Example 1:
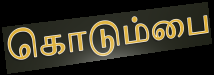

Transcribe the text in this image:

கொடும்பை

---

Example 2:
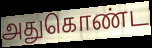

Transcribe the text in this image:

அதுகொண்ட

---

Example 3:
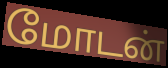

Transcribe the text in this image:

மோடன்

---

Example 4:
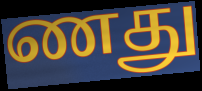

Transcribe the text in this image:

ணது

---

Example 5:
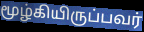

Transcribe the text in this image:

மூழ்கியிருப்பவர்